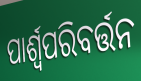
ପାର୍ଶ୍ଵପରିବର୍ତ୍ତନ